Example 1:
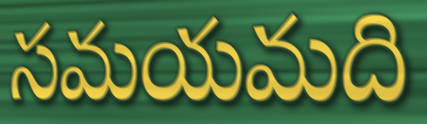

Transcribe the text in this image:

సమయమది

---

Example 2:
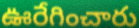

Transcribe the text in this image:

ఊరేగించారు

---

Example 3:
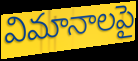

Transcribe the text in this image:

విమానాలపై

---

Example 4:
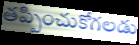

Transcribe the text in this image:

తప్పించుకోగలడు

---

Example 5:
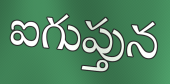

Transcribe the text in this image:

ఐగుప్తున